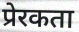
प्रेरकता